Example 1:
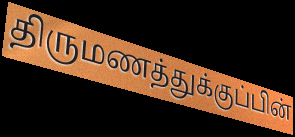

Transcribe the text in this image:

திருமணத்துக்குப்பின்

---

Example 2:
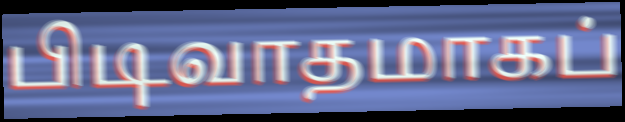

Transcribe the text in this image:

பிடிவாதமாகப்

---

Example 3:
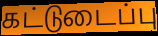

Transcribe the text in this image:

கட்டுடைப்பு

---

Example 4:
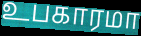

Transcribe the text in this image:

உபகாரமா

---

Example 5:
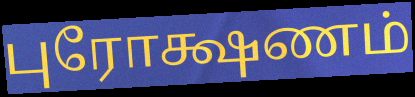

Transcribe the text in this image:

புரோக்ஷணம்